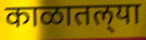
काळातल्या